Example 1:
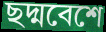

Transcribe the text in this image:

ছদ্মবেশে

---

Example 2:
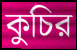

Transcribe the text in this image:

কুচির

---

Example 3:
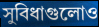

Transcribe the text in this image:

সুবিধাগুলোও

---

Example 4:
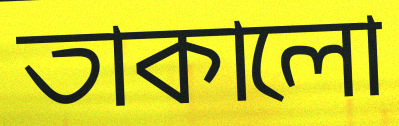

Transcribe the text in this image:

তাকালো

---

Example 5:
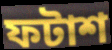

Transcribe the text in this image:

ফটাশ